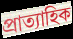
প্ৰাত্যাহিক